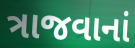
ત્રાજવાનાં